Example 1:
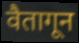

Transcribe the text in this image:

वैतागून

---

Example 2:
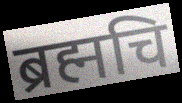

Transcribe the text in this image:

ब्रह्मचि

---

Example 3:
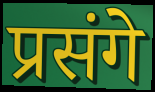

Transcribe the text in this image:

प्रसंगे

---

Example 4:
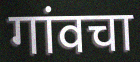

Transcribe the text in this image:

गांवचा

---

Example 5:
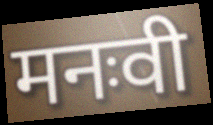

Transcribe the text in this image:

मनःवी